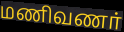
மணிவணர்